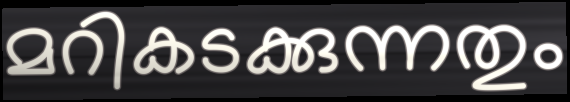
മറികടക്കുന്നതും